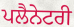
ਪਲੈਨੇਟਰੀ